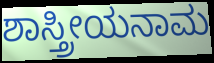
ಶಾಸ್ತ್ರೀಯನಾಮ